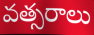
వత్సరాలు